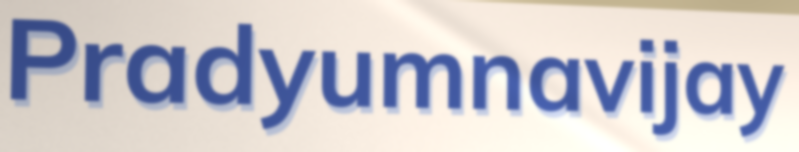
Pradyumnavijay